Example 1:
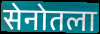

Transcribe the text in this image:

सेनोतला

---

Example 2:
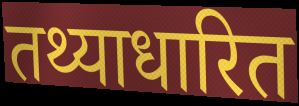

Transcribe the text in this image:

तथ्याधारित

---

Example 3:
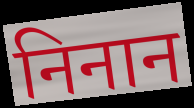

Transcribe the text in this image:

निनान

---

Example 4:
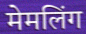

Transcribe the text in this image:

मेमलिंग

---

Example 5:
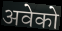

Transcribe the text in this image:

अवेको